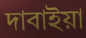
দাবাইয়া